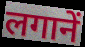
लगानें